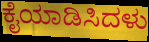
ಕೈಯಾಡಿಸಿದಳು